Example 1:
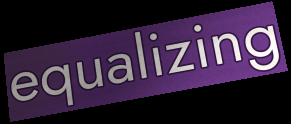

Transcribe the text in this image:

equalizing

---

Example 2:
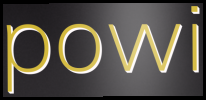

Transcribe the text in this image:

powi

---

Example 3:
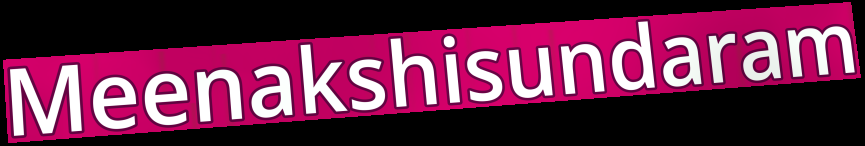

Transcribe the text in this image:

Meenakshisundaram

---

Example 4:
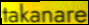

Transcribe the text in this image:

takanare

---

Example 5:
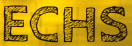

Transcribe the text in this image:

ECHS